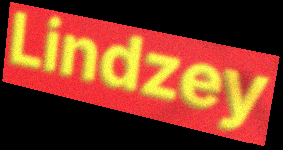
Lindzey